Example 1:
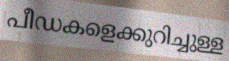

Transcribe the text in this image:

പീഡകളെക്കുറിച്ചുള്ള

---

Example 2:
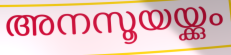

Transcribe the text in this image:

അനസൂയയ്ക്കും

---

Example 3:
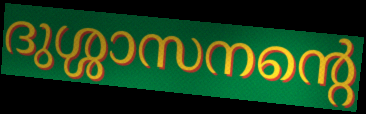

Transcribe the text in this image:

ദുശ്ശാസനന്റെ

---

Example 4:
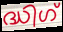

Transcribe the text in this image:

ദ്ധിഗ്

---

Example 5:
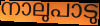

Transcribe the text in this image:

നാലുപാടു